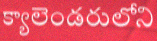
క్యాలెండరులోని